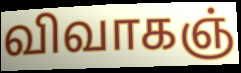
விவாகஞ்